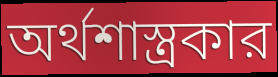
অর্থশাস্ত্রকার